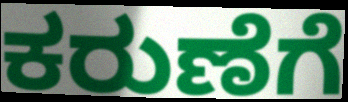
ಕರುಣೆಗೆ